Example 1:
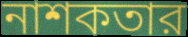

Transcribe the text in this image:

নাশকতার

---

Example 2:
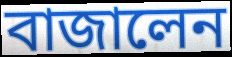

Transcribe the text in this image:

বাজালেন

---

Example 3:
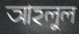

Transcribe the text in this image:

আহলুল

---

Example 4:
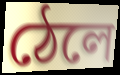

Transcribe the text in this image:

ঠেলে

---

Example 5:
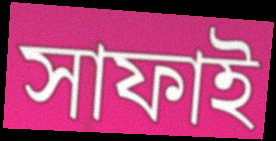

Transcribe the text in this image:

সাফাই